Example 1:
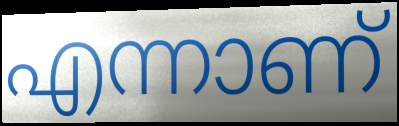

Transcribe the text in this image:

എന്നാണ്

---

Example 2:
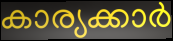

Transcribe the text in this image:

കാര്യക്കാർ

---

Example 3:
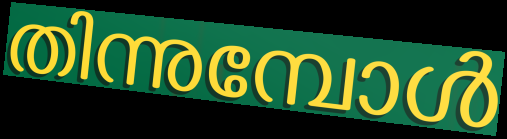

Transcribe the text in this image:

തിന്നുമ്പോൾ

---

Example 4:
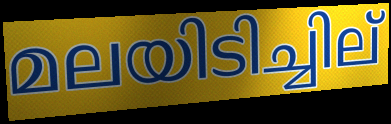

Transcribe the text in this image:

മലയിടിച്ചില്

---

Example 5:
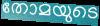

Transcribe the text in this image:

തോമയുടെ